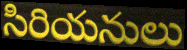
సిరియనులు